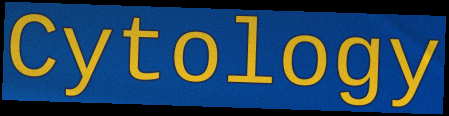
Cytology